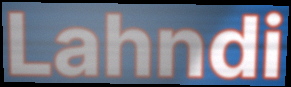
Lahndi